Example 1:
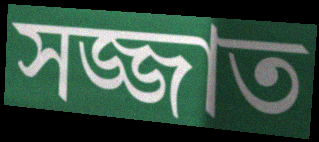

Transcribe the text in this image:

সজ্জাত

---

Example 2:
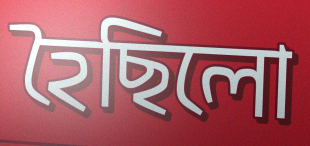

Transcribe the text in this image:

হৈছিলো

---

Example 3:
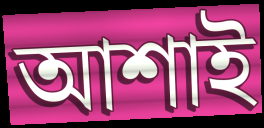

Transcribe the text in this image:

আশাই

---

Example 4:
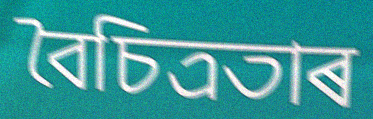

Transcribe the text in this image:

বৈচিত্ৰতাৰ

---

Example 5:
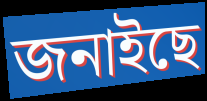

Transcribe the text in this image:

জনাইছে